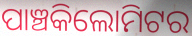
ପାଞ୍ଚକିଲୋମିଟର